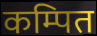
कम्पित